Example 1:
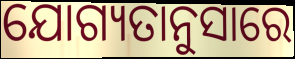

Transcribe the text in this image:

ଯୋଗ୍ୟତାନୁସାରେ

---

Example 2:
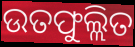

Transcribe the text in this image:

ଉତଫୁଲ୍ଲିତ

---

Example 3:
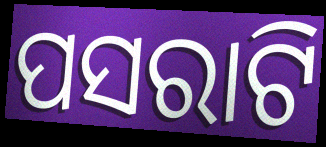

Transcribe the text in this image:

ପସରାଟି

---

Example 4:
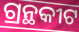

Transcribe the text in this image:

ଗ୍ରନ୍ଥକୀଟ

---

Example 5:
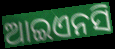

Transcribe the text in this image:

ଆଇଏନସି